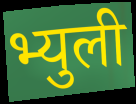
भ्युली